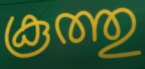
കൂത്തു